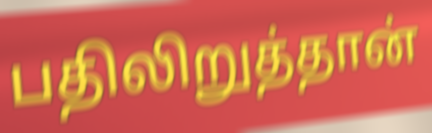
பதிலிறுத்தான்